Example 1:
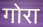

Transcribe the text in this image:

गोरा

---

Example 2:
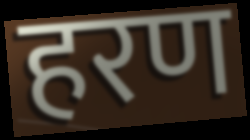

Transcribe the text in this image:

हरण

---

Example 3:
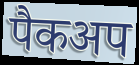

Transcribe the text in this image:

पैकअप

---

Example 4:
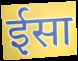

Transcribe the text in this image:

ई़सा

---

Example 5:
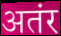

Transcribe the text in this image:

अतंर